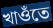
খাওঁতে